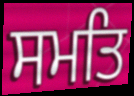
ਸਮਤਿ